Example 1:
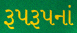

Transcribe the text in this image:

રૂપરૂપનાં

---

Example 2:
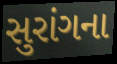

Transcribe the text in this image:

સુરાંગના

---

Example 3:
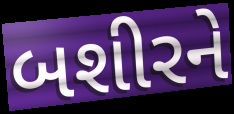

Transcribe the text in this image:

બશીરને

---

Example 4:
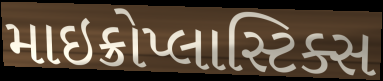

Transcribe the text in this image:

માઇક્રોપ્લાસ્ટિક્સ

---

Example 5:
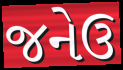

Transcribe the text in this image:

જનેઉ